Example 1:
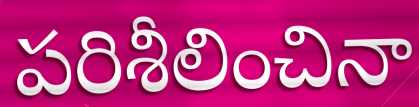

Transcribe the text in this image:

పరిశీలించినా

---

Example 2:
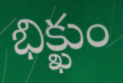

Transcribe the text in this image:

భిక్ఖుం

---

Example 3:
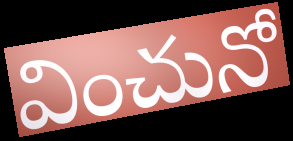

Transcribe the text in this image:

వించునో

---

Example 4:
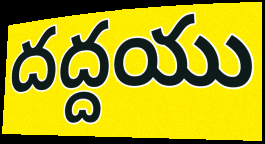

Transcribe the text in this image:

దద్దయు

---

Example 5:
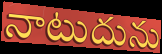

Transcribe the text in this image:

నాటుదును